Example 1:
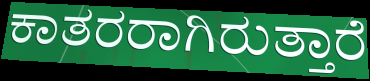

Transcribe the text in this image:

ಕಾತರರಾಗಿರುತ್ತಾರೆ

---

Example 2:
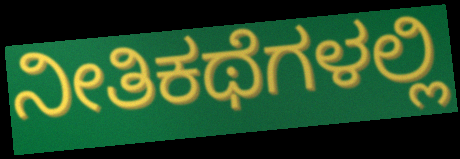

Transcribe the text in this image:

ನೀತಿಕಥೆಗಳಲ್ಲಿ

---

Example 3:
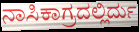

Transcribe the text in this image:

ನಾಸಿಕಾಗ್ರದಲ್ಲಿರ್ದು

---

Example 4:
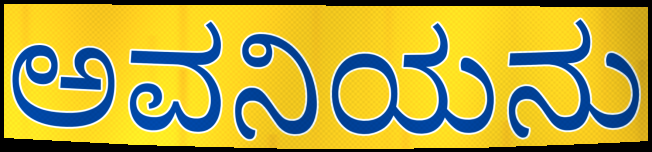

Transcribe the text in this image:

ಅವನಿಯನು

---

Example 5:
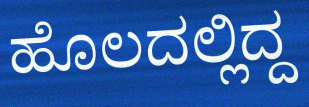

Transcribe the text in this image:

ಹೊಲದಲ್ಲಿದ್ದ